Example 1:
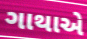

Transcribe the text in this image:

ગાથાએ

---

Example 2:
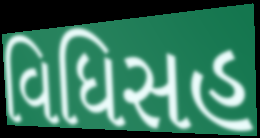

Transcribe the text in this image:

વિધિસહ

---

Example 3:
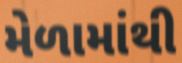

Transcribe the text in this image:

મેળામાંથી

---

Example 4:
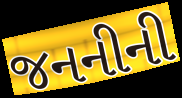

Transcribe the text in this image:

જનનીની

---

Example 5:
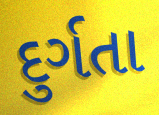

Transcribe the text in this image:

દુર્ગતા